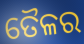
ତୈଳର